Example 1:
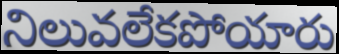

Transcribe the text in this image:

నిలువలేకపోయారు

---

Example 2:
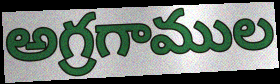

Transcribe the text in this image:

అగ్రగాముల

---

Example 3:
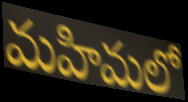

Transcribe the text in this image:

మహిమలో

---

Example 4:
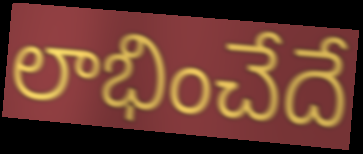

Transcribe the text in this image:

లాభించేదే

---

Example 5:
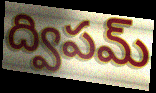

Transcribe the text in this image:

ద్విపమ్